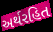
અર્થરહિત